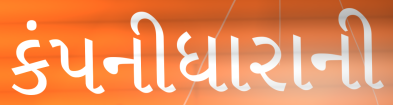
કંપનીધારાની